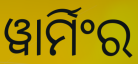
ୱାର୍ମିଂର